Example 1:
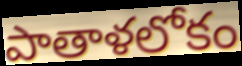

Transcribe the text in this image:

పాతాళలోకం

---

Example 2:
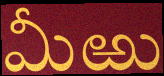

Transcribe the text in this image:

మీఱు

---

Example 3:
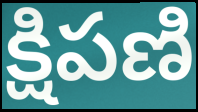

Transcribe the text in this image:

క్షిపణి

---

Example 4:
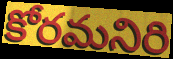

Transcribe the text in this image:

కోరమనిరి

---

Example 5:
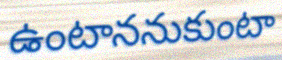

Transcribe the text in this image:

ఉంటాననుకుంటా